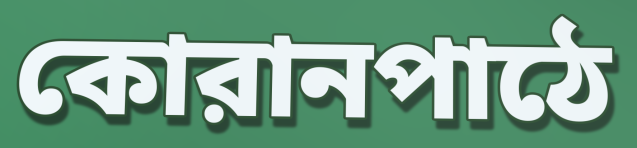
কোরানপাঠে